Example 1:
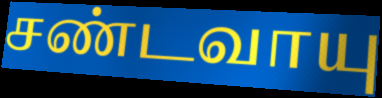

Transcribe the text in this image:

சண்டவாயு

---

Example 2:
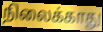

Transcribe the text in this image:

நிலைக்காது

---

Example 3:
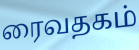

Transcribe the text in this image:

ரைவதகம்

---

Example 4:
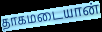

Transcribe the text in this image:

தாகமடையான்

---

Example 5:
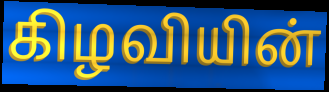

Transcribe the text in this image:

கிழவியின்